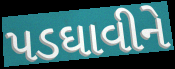
પડઘાવીને